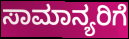
ಸಾಮಾನ್ಯರಿಗೆ